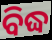
ବିଦ୍ଧ